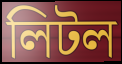
লিটল